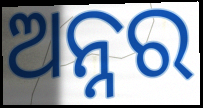
ଅନ୍ନର